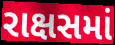
રાક્ષસમાં